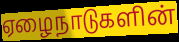
ஏழைநாடுகளின்